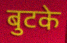
बुटके